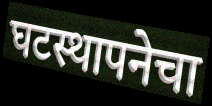
घटस्थापनेचा